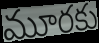
మూరకు